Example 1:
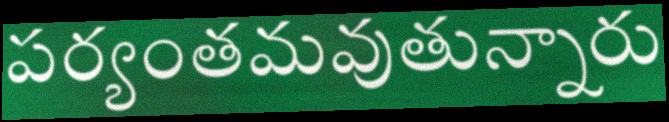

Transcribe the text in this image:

పర్యంతమవుతున్నారు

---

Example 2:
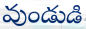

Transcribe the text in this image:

వుండుడి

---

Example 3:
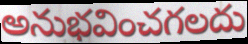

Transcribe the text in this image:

అనుభవించగలదు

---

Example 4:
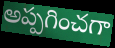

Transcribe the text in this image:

అప్పగించగా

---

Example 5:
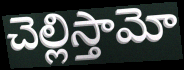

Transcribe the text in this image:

చెల్లిస్తామో